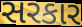
સરકાર